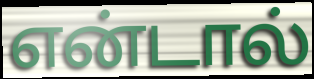
என்டால்